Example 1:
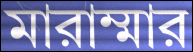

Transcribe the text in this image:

মারাম্মার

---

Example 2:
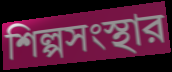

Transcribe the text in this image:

শিল্পসংস্থার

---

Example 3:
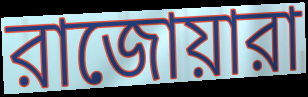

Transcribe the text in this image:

রাজোয়ারা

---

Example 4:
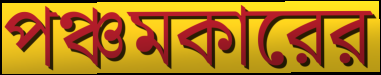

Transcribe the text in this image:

পঞ্চমকারের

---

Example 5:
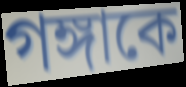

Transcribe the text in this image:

গঙ্গাকে